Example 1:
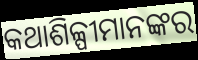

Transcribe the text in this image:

କଥାଶିଳ୍ପୀମାନଙ୍କର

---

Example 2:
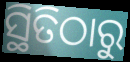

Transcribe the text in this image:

ସ୍ଥିତିଠାରୁ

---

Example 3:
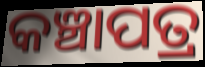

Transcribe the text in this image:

କଞ୍ଚାପତ୍ର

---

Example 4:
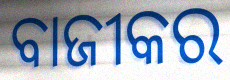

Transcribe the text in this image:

ବାଜୀକର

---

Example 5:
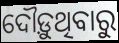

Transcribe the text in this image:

ଦୌଡ଼ୁଥିବାରୁ